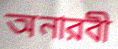
অনারবী